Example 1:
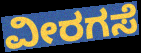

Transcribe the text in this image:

ವೀರಗಸೆ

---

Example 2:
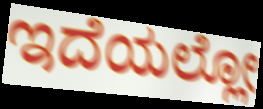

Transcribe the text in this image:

ಇದೆಯಲ್ಲೋ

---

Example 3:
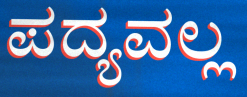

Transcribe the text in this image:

ಪದ್ಯವಲ್ಲ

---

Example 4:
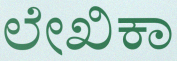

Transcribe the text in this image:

ಲೇಖಿಕಾ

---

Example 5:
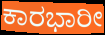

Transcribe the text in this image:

ಕಾರಭಾರೀ